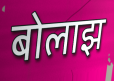
बोलाझ